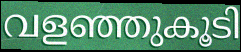
വളഞ്ഞുകൂടി